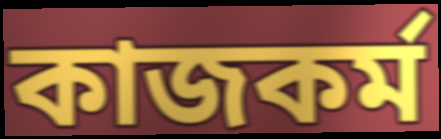
কাজকর্ম